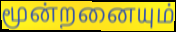
மூன்றனையும்